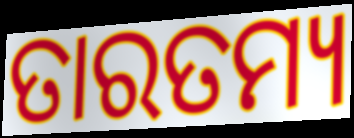
ତାରତମ୍ୟ